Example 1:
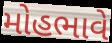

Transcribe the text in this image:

મોહભાવે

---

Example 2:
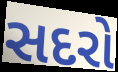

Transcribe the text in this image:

સદરો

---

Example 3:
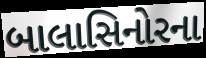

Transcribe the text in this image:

બાલાસિનોરના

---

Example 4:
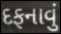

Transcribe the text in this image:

દફનાવું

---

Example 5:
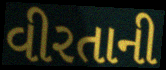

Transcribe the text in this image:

વીરતાની